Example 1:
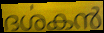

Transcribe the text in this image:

ദൎശകൻ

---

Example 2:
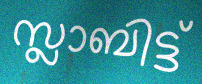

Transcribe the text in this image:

സ്ലാബിട്ട്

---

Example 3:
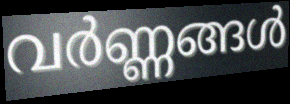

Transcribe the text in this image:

വർണ്ണങ്ങൾ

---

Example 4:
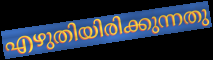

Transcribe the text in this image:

എഴുതിയിരിക്കുന്നതു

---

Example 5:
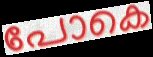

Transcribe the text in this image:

പോകെ